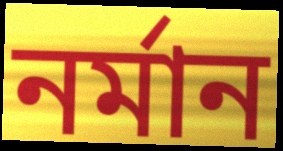
নৰ্মান